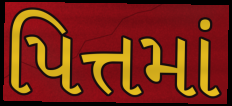
પિત્તમાં